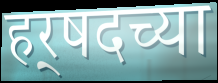
हर्षदच्या